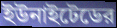
ইউনাইটেডের